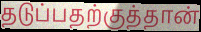
தடுப்பதற்குத்தான்